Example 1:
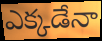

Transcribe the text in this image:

ఎక్కడేనా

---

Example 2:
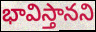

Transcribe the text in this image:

భావిస్తానని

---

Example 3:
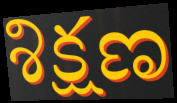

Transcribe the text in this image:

శిక్షణ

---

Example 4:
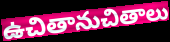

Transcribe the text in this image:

ఉచితానుచితాలు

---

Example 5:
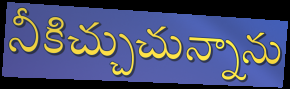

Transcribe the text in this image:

నీకిచ్చుచున్నాను